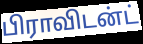
பிராவிடன்ட்